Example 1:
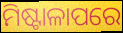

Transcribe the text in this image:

ମିଷ୍ଟାଳାପରେ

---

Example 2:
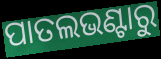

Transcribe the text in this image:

ପାତଲଭଣ୍ଟାରୁ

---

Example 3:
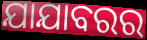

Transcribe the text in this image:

ଯାଯାବରର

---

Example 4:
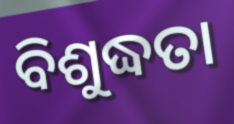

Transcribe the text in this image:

ବିଶୁଦ୍ଧତା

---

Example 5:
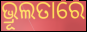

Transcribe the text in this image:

ଭ୍ରୂଲତାରେ